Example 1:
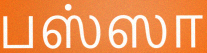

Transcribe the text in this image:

பஸ்ஸா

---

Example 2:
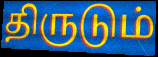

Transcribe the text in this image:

திருடும்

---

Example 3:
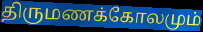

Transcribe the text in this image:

திருமணக்கோலமும்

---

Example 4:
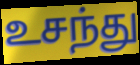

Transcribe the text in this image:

உசந்து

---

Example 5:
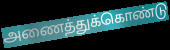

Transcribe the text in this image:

அணைத்துக்கொண்டு